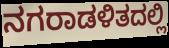
ನಗರಾಡಳಿತದಲ್ಲಿ